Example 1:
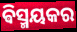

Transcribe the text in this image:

ଵିସ୍ମୟକର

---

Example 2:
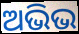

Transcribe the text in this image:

ଅଭିଭ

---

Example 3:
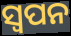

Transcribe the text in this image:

ସ୍ବପନ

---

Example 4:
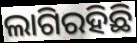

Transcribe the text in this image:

ଲାଗିରହିଛି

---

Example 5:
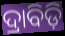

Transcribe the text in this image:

ଦ୍ରାବିଡ଼ି